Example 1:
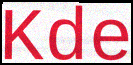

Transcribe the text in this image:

Kde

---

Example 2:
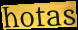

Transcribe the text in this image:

hotas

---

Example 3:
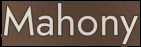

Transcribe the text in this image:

Mahony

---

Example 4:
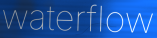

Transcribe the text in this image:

waterflow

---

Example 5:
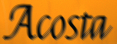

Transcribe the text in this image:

Acosta